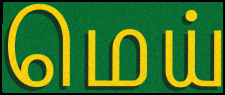
மெய்